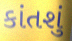
કાંતશું